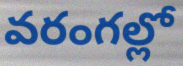
వరంగల్లో